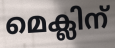
മെക്ലിന്